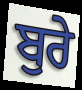
ਬੁਰੇ